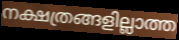
നക്ഷത്രങ്ങളില്ലാത്ത